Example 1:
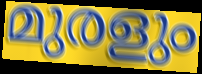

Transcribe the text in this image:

മുരളും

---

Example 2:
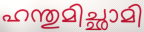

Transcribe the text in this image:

ഹന്തുമിച്ഛാമി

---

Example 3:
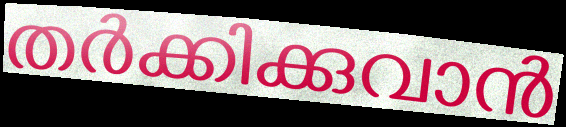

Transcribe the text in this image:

തർക്കിക്കുവാൻ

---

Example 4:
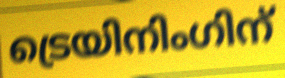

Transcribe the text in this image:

ട്രെയിനിംഗിന്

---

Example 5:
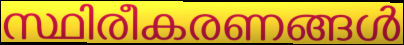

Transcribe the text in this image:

സ്ഥിരീകരണങ്ങൾ